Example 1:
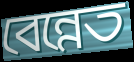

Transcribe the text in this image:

বেন্নেত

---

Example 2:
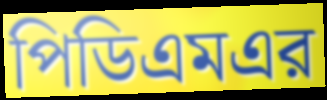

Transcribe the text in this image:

পিডিএমএর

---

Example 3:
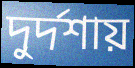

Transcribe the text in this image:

দুর্দশায়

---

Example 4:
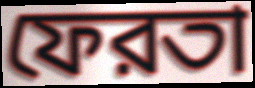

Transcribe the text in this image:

ফেরতা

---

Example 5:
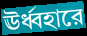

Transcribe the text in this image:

ঊর্ধ্বহারে